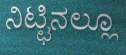
ನಿಟ್ಟಿನಲ್ಲೂ